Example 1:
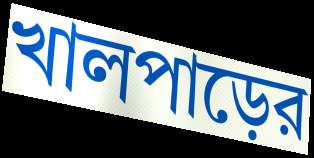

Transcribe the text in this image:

খালপাড়ের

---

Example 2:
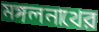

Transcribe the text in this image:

মঙ্গলনাথের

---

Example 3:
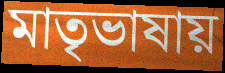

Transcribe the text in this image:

মাতৃভাষায়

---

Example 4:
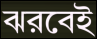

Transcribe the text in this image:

ঝরবেই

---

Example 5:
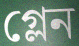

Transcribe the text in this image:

গ্লেন